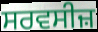
ਸਰਵਸੀਜ਼